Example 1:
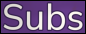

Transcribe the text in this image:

Subs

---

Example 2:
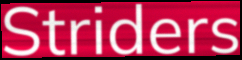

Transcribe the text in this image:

Striders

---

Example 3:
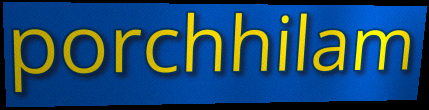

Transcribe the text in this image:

porchhilam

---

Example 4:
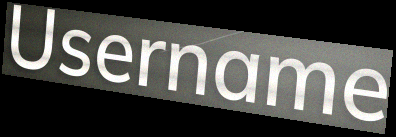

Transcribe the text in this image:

Username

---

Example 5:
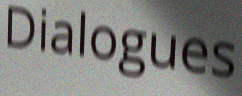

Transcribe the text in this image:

Dialogues